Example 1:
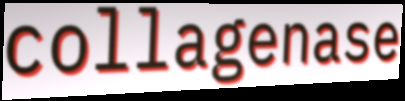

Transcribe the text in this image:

collagenase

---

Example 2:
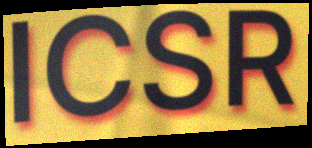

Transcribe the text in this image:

ICSR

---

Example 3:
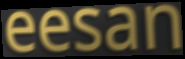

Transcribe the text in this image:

eesan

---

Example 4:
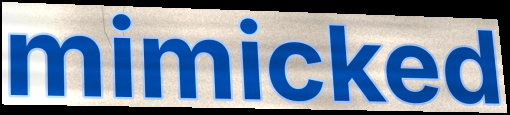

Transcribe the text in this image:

mimicked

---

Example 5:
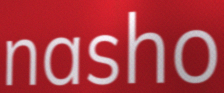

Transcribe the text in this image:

nasho